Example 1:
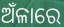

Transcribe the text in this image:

ଅଁଳାରେ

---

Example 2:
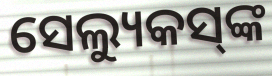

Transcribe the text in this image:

ସେଲ୍ୟୁକସ୍‌ଙ୍କ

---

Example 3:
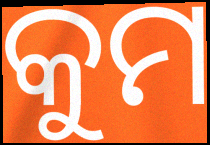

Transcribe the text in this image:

କୁମ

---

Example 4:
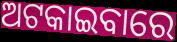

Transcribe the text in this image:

ଅଟକାଇବାରେ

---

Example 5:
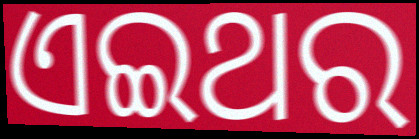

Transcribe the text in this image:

ଏଇଥର